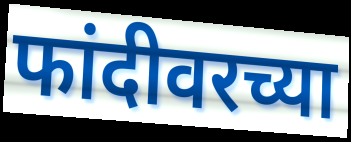
फांदीवरच्या